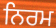
ਨਿਰਮ